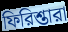
ফিরিশ্তারা